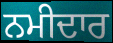
ਨਮੀਦਾਰ